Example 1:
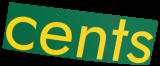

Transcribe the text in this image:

cents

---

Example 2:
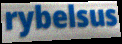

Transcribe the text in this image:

rybelsus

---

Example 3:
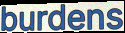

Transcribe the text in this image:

burdens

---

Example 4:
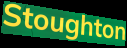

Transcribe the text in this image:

Stoughton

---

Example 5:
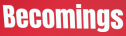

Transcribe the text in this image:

Becomings